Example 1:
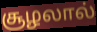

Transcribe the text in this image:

சூழலால்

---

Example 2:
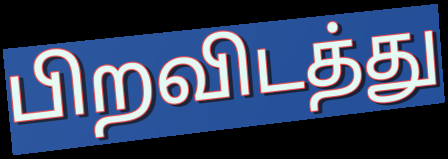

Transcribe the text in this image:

பிறவிடத்து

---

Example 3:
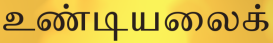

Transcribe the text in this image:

உண்டியலைக்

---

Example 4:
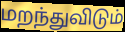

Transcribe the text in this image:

மறந்துவிடும்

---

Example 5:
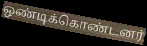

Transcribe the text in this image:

ஒண்டிக்கொண்டனர்